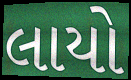
લાયો